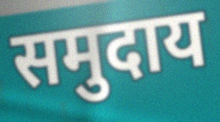
समुदाय